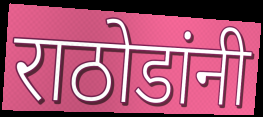
राठोडांनी